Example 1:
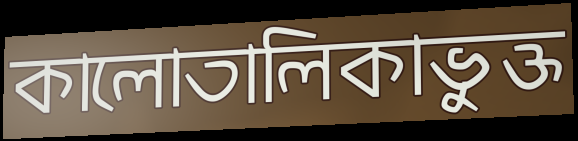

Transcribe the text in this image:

কালোতালিকাভুক্ত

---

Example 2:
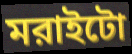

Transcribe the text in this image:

মরাইটো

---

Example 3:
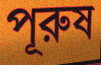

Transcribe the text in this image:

পূরুষ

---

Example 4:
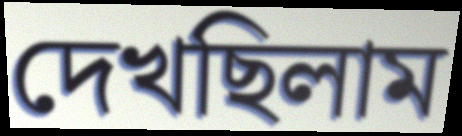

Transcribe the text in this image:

দেখছিলাম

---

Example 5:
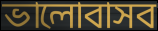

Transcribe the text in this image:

ভালোবাসব